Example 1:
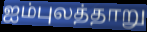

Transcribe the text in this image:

ஐம்புலத்தாறு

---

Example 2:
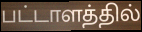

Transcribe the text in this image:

பட்டாளத்தில்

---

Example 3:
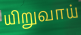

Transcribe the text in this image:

யிறுவாய்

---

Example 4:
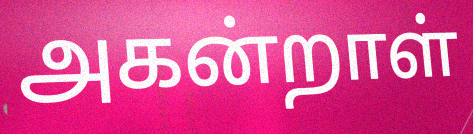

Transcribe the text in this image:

அகன்றாள்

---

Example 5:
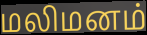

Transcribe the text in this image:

மலிமனம்